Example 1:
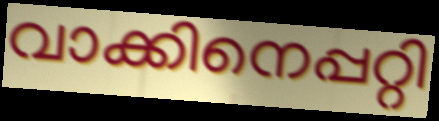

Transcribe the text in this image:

വാക്കിനെപ്പറ്റി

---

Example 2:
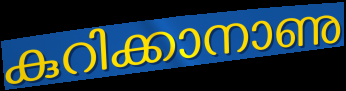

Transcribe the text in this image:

കുറിക്കാനാണു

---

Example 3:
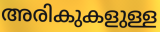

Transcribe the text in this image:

അരികുകളുള്ള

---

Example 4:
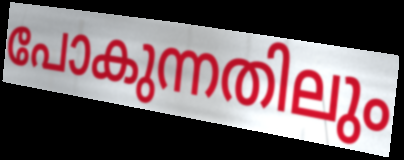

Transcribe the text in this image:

പോകുന്നതിലും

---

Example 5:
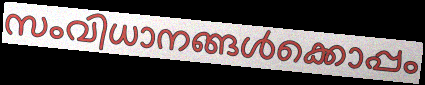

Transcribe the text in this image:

സംവിധാനങ്ങൾക്കൊപ്പം